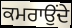
ਕਮਰਾਉਂਦੇ